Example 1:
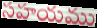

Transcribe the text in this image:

సహయము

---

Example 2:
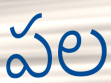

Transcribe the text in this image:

పల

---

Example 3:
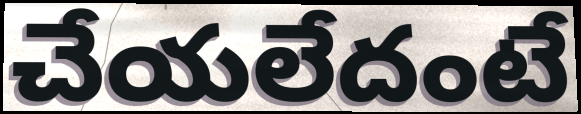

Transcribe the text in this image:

చేయలేదంటే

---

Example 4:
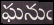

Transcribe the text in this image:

ఘనుఁ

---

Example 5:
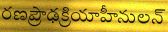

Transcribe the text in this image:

రణప్రౌఢక్రియాహీనులన్